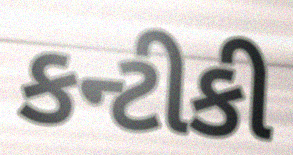
કન્ટીકી